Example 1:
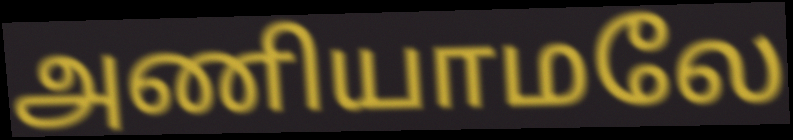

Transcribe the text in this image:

அணியாமலே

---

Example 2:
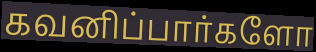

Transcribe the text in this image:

கவனிப்பார்களோ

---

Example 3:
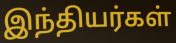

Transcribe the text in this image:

இந்தியர்கள்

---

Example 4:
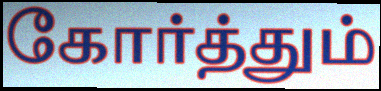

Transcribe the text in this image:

கோர்த்தும்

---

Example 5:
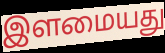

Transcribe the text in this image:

இளமையது